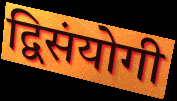
द्विसंयोगी